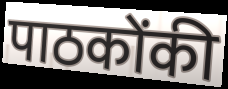
पाठकोंकी